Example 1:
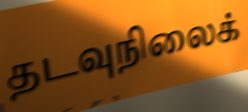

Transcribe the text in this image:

தடவுநிலைக்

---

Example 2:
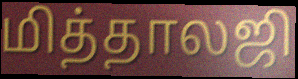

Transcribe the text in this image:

மித்தாலஜி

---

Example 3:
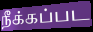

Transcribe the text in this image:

நீக்கப்பட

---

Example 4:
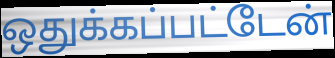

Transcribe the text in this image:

ஒதுக்கப்பட்டேன்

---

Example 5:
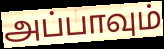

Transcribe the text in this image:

அப்பாவும்